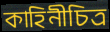
কাহিনীচিত্র